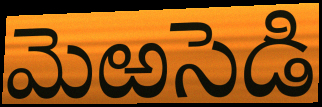
మెఱసెడి